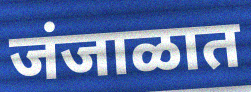
जंजाळात